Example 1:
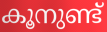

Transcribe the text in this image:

കൂനുണ്ട്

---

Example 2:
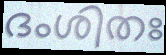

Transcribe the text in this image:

ദംശിതഃ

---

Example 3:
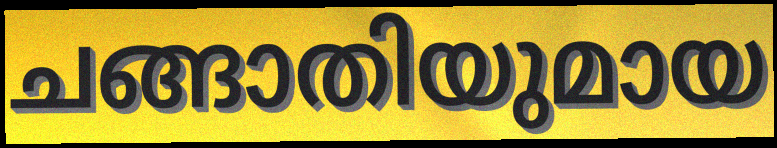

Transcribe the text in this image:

ചങ്ങാതിയുമായ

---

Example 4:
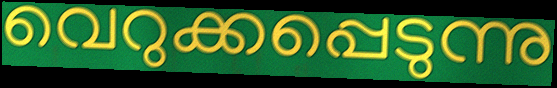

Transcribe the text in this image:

വെറുക്കപ്പെടുന്നു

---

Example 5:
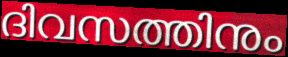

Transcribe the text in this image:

ദിവസത്തിനും